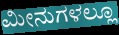
ಮೀನುಗಳಲ್ಲೂ